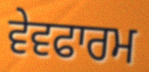
ਵੇਵਫਾਰਮ